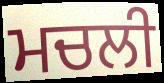
ਮਚਲੀ